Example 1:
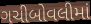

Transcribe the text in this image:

ગચીબોવલીમાં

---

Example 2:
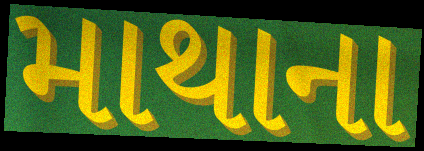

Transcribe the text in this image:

માથાના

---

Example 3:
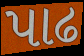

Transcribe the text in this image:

પાઢ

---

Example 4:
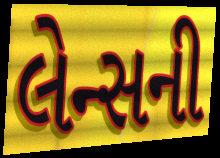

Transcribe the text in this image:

લેન્સની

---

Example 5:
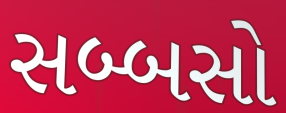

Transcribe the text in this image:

સબ્બસો